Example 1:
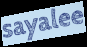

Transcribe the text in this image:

sayalee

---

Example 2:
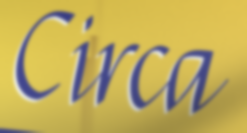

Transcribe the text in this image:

Circa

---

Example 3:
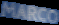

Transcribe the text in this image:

MARCO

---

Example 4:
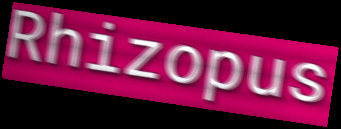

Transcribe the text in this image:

Rhizopus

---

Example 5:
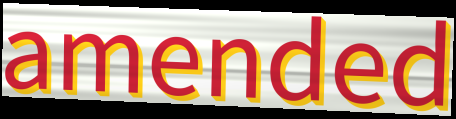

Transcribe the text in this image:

amended